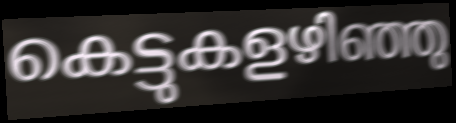
കെട്ടുകളഴിഞ്ഞു